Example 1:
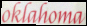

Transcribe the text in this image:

oklahoma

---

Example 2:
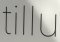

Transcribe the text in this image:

tillu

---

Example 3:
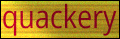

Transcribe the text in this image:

quackery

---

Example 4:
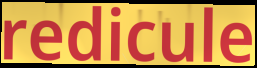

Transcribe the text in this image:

redicule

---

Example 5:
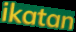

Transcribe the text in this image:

ikatan